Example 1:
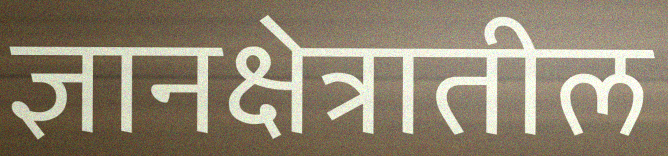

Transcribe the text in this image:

ज्ञानक्षेत्रातील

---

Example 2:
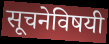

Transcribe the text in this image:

सूचनेविषयी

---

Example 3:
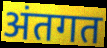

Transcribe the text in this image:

अंतगत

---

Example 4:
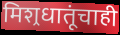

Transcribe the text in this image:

मिश्रधातूंचाही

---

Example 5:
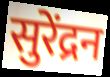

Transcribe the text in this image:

सुरेंद्रन